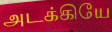
அடக்கியே